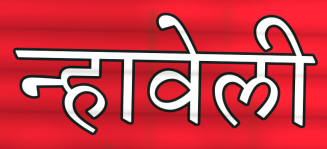
न्हावेली